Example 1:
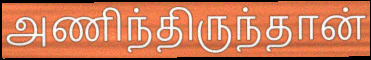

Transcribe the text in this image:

அணிந்திருந்தான்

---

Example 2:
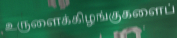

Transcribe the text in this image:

உருளைக்கிழங்குகளைப்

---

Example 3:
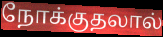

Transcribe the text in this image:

நோக்குதலால்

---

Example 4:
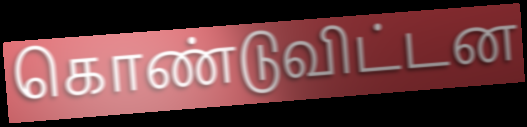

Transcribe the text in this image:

கொண்டுவிட்டன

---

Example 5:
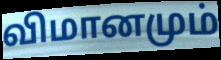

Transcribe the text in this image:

விமானமும்